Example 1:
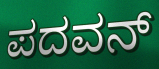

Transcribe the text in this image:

ಪದವನ್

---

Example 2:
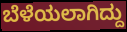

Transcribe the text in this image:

ಬೆಳೆಯಲಾಗಿದ್ದು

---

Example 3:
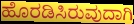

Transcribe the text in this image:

ಹೊರಡಿಸಿರುವುದಾಗಿ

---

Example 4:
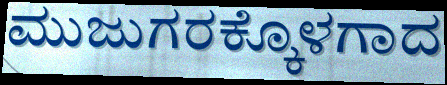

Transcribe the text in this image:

ಮುಜುಗರಕ್ಕೊಳಗಾದ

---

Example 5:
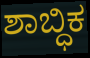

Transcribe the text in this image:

ಶಾಬ್ಧಿಕ